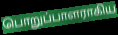
பொறுப்பாளராகிய